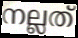
നല്ലത്